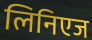
लिनिएज